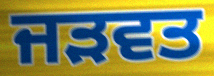
ਜੜਵਤ